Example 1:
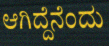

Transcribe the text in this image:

ಆಗಿದ್ದೆನೆಂದು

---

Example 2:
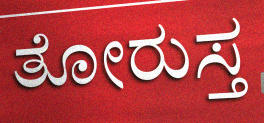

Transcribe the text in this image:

ತೋರುಸ್ತ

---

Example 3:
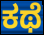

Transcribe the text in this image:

ಕಥೆ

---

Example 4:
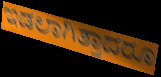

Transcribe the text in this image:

ಇಡಲಾಗಿತ್ತಾದರೂ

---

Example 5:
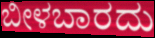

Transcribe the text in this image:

ಬೀಳಬಾರದು